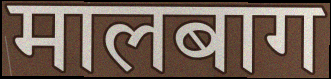
मालबाग